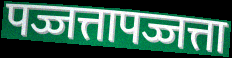
पज्जत्तापज्जत्ता